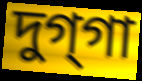
দুগ্‌গা